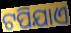
ଟପିଯାଏ